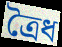
ত্রৈধ